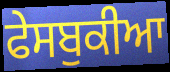
ਫੇਸਬੁਕੀਆ